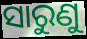
ସାରୁଣୁ